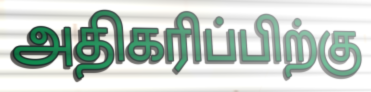
அதிகரிப்பிற்கு